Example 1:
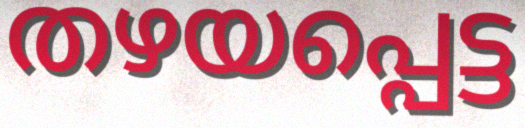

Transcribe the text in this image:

തഴയപ്പെട്ട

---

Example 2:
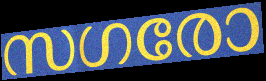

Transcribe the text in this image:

സഗരോ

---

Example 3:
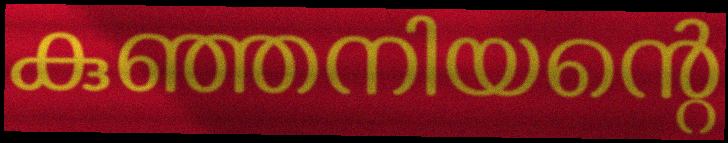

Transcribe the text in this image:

കുഞ്ഞനിയന്റെ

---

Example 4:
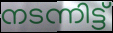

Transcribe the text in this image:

നടന്നിട്ട്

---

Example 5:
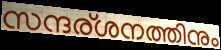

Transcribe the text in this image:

സന്ദര്ശനത്തിനും